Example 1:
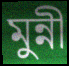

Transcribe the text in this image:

মুন্নী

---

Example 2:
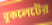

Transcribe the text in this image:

বুকলেটের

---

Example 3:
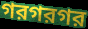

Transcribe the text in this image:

গরগরগর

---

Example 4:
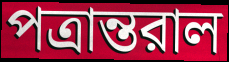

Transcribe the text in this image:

পত্রান্তরাল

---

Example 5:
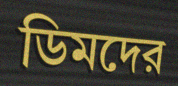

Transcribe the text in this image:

ডিমদের